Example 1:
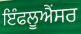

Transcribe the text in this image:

ਇੰਫਲੂਐਂਸਰ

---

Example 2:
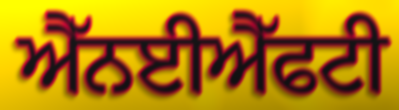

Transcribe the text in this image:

ਐੱਨਈਐੱਫਟੀ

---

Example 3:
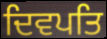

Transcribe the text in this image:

ਦਿਵਪਤਿ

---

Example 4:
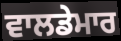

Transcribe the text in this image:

ਵਾਲਡੇਮਾਰ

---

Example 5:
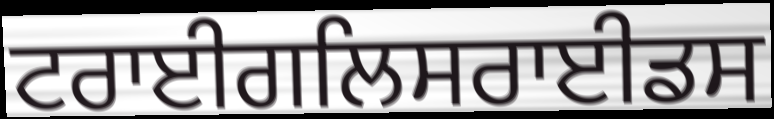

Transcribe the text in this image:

ਟਰਾਈਗਲਿਸਰਾਈਡਸ